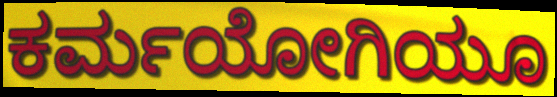
ಕರ್ಮಯೋಗಿಯೂ